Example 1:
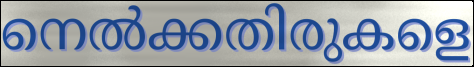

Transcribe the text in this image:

നെൽക്കതിരുകളെ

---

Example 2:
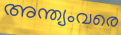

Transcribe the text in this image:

അന്ത്യംവരെ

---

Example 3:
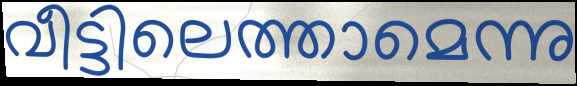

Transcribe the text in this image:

വീട്ടിലെത്താമെന്നു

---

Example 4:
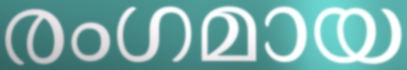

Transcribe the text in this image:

രംഗമായ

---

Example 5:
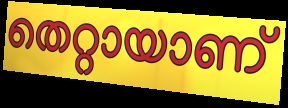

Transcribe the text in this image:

തെറ്റായാണ്